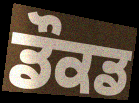
ਡੌਕਡ